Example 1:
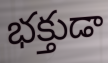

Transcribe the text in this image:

భక్తుడా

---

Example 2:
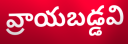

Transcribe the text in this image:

వ్రాయబడ్డవి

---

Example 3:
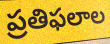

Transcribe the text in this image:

ప్రతిఫలాల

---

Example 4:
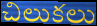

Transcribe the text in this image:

చిలుకలు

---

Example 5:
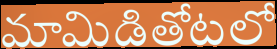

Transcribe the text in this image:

మామిడితోటలో